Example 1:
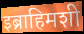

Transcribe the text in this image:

इब्राहिमशी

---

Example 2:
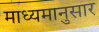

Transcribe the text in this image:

माध्यमानुसार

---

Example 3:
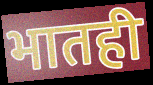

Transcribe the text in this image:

भातही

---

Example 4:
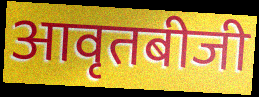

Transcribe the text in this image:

आवृतबीजी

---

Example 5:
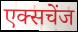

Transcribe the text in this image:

एक्सचेंज